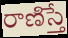
రాణిస్తే